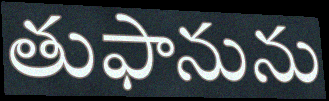
తుఫానును